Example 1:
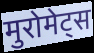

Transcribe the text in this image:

मुरोमेट्स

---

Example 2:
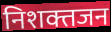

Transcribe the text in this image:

निशक्तजन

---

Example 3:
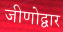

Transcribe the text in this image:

जीणोद्वार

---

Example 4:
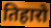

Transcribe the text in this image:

तिहारो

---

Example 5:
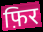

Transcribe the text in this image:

फ़िर